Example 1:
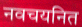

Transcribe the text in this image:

नवचयनित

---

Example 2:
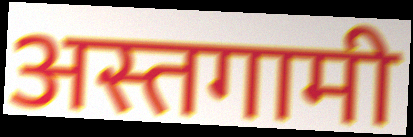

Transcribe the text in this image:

अस्तगामी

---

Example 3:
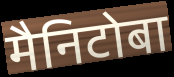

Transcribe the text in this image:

मैनिटोबा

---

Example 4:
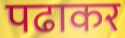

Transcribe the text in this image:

पढाकर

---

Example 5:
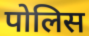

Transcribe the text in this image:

पोलिस